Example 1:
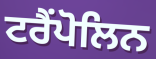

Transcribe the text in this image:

ਟਰੈਂਪੋਲਿਨ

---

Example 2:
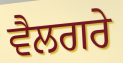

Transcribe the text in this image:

ਵੈਲਗਰੇ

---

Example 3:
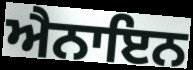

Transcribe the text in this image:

ਐਨਾਇਨ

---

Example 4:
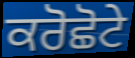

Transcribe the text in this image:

ਕਰੋਛੋਟੇ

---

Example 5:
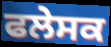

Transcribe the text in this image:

ਫਲੇਸਕ